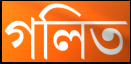
গলিত